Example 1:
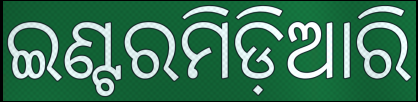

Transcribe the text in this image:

ଇଣ୍ଟରମିଡ଼ିଆରି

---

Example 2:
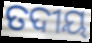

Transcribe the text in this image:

ତଦୀୟ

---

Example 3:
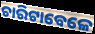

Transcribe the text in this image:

ଚାରିଟାବେଳେ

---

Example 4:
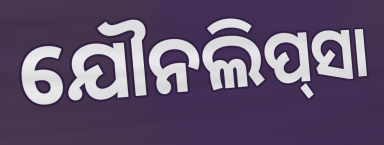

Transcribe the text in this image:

ଯୌନଲିପ୍‌ସା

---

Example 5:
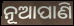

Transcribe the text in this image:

ନୂଆପାଣି